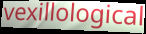
vexillological